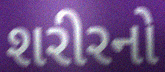
શરીરનો